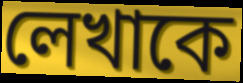
লেখাকে